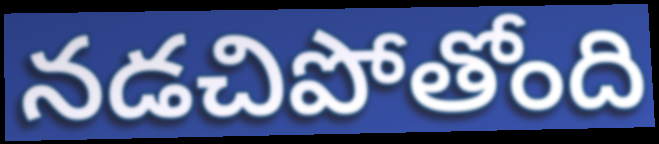
నడచిపోతోంది